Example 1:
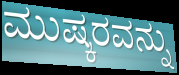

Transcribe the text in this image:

ಮುಷ್ಕರವನ್ನು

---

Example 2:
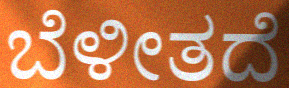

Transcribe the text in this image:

ಬೆಳೀತದೆ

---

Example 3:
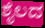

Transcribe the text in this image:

ಶೈಲದ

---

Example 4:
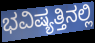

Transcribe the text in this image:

ಭವಿಷ್ಯತ್ತಿನಲ್ಲಿ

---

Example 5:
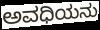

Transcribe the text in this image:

ಅವಧಿಯನು